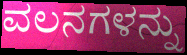
ವಲನಗಳನ್ನು